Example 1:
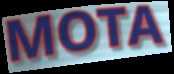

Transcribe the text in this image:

MOTA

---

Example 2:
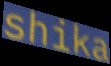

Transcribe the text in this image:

shika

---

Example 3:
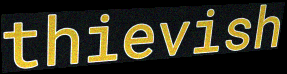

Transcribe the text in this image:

thievish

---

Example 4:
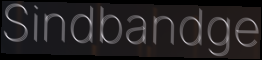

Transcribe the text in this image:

Sindbandge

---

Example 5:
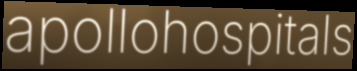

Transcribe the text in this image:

apollohospitals